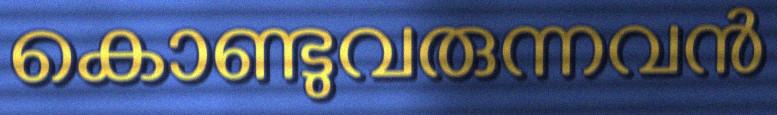
കൊണ്ടുവരുന്നവൻ